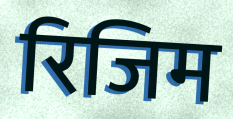
रिजिम